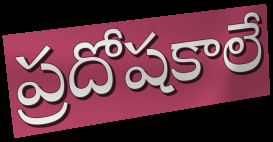
ప్రదోషకాలే